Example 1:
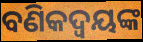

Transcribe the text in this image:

ବଣିକଦ୍ଵୟଙ୍କ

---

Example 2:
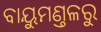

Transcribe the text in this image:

ବାୟୁମଣ୍ତଳରୁ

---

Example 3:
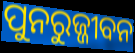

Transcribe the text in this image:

ପୁନରୁଜ୍ଜୀବନ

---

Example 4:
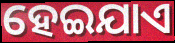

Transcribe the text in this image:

ହେଇଯାଏ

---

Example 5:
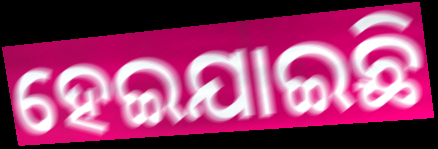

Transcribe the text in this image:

ହେଇଯାଇଛି